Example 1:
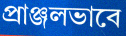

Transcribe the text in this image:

প্রাঞ্জলভাবে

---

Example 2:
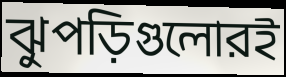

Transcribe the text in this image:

ঝুপড়িগুলোরই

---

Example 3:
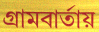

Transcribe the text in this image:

গ্রামবার্তায়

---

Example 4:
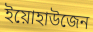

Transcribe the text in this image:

ইয়োহাউজেন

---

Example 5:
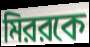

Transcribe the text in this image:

মিররকে